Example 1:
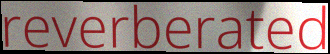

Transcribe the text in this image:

reverberated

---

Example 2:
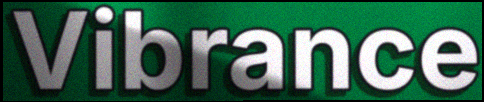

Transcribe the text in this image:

Vibrance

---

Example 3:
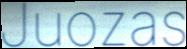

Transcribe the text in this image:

Juozas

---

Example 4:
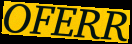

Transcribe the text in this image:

OFERR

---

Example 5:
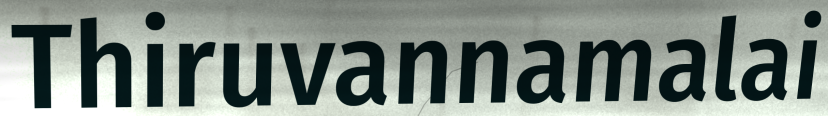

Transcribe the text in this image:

Thiruvannamalai